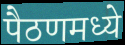
पैठणमध्ये